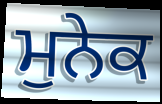
ਮੁਨੇਕ